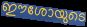
ഈശോയുടെ